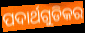
ପଦାର୍ଥଗୁଡିକର